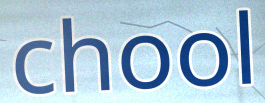
chool